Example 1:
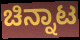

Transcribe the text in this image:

ಚಿನ್ನಾಟ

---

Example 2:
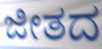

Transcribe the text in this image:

ಜೀತದ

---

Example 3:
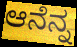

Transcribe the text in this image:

ಆನೆನ್ನ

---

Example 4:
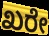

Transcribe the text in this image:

ಖರೇ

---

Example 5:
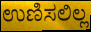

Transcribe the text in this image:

ಉಣಿಸಲಿಲ್ಲ